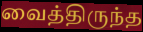
வைத்திருந்த